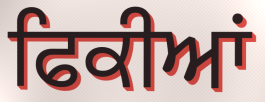
ਫਿਕੀਆਂ